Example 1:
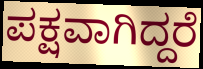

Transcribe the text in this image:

ಪಕ್ಷವಾಗಿದ್ದರೆ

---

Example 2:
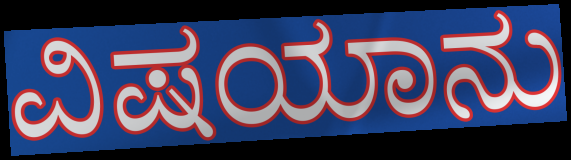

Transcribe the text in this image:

ವಿಷಯಾನು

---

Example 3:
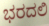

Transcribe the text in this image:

ಭರದಲಿ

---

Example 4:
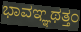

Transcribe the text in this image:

ಭಾವಞ್ಞಥತ್ತಂ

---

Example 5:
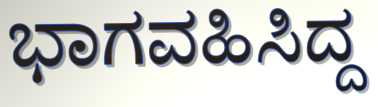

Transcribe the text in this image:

ಭಾಗವಹಿಸಿದ್ದ